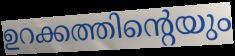
ഉറക്കത്തിന്റെയും